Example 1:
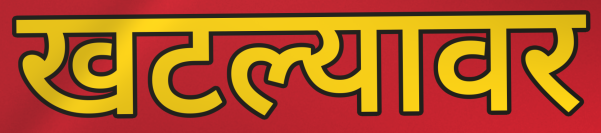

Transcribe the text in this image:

खटल्यावर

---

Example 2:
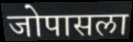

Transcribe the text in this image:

जोपासला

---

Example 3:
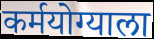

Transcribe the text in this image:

कर्मयोग्याला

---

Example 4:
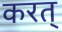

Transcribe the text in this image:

करत्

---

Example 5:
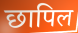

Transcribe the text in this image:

छापिल